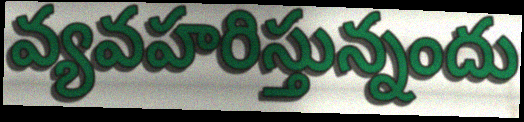
వ్యవహరిస్తున్నందు